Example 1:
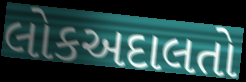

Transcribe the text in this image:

લોકઅદાલતો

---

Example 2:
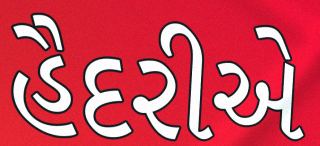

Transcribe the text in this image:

હૈદરીએ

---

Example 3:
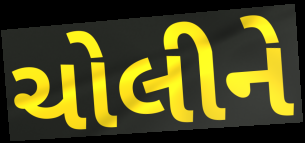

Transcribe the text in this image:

ચોલીને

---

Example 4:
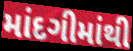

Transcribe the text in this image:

માંદગીમાંથી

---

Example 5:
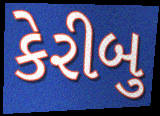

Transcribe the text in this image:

કેરીબુ